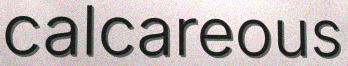
calcareous